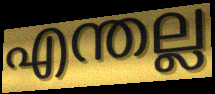
എന്തല്ല